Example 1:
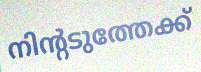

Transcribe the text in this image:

നിന്റടുത്തേക്ക്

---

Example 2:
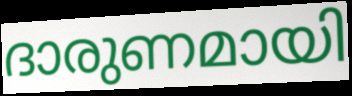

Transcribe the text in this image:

ദാരുണമായി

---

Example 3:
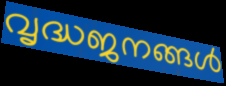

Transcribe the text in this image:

വൃദ്ധജനങ്ങൾ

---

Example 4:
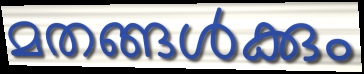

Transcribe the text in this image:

മതങ്ങൾക്കും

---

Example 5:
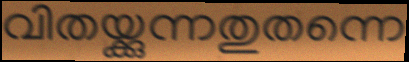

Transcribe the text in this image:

വിതയ്ക്കുന്നതുതന്നെ